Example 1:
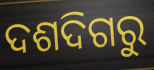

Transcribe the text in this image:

ଦଶଦିଗରୁ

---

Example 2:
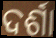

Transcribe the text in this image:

ଦର୍ଶା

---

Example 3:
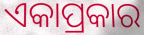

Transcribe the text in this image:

ଏକାପ୍ରକାର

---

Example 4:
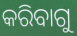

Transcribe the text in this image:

କରିବାଗୁ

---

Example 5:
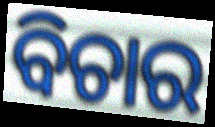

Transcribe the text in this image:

ବିଚାର